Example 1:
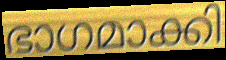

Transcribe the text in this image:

ഭാഗമാക്കി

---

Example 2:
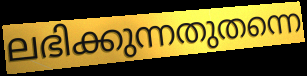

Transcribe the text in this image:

ലഭിക്കുന്നതുതന്നെ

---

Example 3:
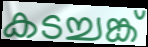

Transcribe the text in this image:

കടച്ചങ്ക്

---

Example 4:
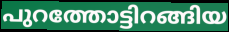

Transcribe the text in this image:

പുറത്തോട്ടിറങ്ങിയ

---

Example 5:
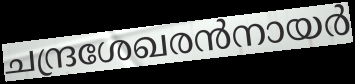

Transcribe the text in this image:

ചന്ദ്രശേഖരൻനായർ